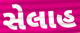
સેલાહ